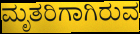
ಮೃತರಿಗಾಗಿರುವ